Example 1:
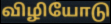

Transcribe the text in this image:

விழியோடு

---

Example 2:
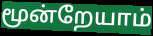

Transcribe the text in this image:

மூன்றேயாம்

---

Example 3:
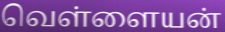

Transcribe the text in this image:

வெள்ளையன்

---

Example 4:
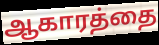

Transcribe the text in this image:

ஆகாரத்தை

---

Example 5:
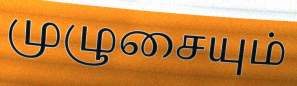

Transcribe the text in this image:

முழுசையும்